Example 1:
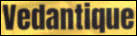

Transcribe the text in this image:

Vedantique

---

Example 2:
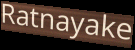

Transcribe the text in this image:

Ratnayake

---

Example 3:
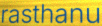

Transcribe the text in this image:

rasthanu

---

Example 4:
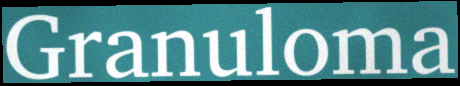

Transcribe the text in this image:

Granuloma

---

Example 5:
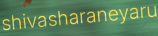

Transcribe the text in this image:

shivasharaneyaru